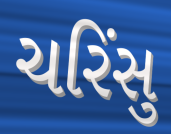
ચરિંસુ